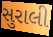
સુરાલી